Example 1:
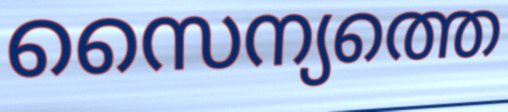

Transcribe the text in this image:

സൈന്യത്തെ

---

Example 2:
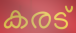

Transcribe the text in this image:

കരട്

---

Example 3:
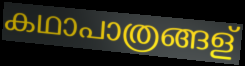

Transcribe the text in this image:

കഥാപാത്രങ്ങള്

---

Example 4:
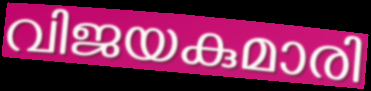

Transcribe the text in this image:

വിജയകുമാരി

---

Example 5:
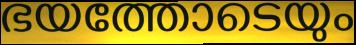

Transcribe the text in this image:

ഭയത്തോടെയും